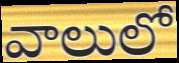
వాలులో